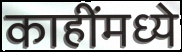
काहींमध्ये